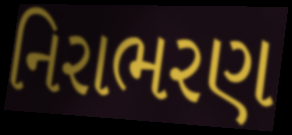
નિરાભરણ